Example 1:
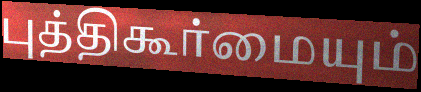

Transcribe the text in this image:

புத்திகூர்மையும்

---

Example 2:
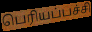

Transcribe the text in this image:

பெரியப்பச்சி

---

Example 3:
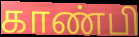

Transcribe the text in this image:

காண்பி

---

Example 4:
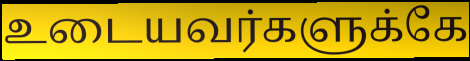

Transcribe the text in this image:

உடையவர்களுக்கே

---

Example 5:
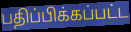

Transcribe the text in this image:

பதிப்பிக்கப்பட்ட